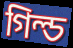
গিল্ড